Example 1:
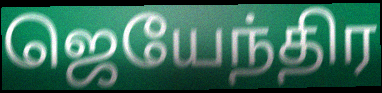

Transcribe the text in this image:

ஜெயேந்திர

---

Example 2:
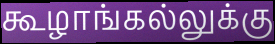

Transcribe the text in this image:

கூழாங்கல்லுக்கு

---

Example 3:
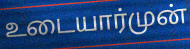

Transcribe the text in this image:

உடையார்முன்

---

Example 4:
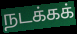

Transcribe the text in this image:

நடக்கக்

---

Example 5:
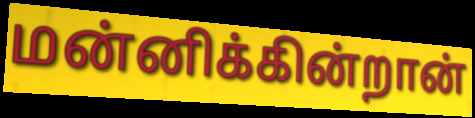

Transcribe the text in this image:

மன்னிக்கின்றான்